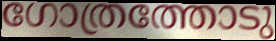
ഗോത്രത്തോടു